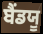
ਬੈਂਡਯੂ